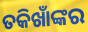
ତକିଖାଁଙ୍କର